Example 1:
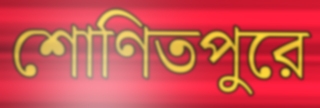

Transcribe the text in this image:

শোণিতপুরে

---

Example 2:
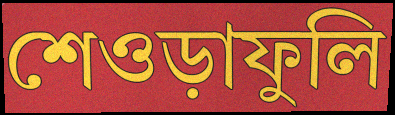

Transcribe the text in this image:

শেওড়াফুলি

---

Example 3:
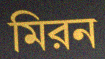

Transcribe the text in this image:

মিরন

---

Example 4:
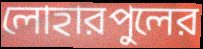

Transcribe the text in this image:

লোহারপুলের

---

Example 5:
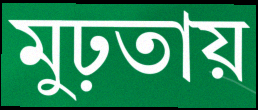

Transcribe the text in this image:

মুঢ়তায়